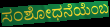
ಸಂಶೋಧನೆಯೆಂಬ